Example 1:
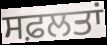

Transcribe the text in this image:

ਸਫ਼ਲਤਾਂ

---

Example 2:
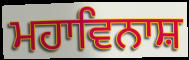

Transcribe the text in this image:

ਮਹਾਵਿਨਾਸ਼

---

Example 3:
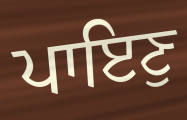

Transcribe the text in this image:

ਪਾਇਣੁ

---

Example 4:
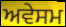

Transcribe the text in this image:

ਅਵੇਸਮ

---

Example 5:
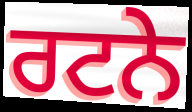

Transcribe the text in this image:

ਰਟਨੇ